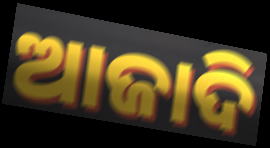
ଆଜାଦି